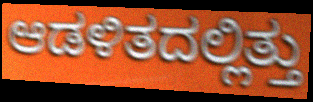
ಆಡಳಿತದಲ್ಲಿತ್ತು